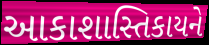
આકાશાસ્તિકાયને